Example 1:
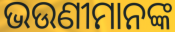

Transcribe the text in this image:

ଭଉଣୀମାନଙ୍କ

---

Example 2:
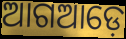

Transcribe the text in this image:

ଆଗଆଡ଼େ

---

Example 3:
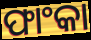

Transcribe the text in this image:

ଫାଂକା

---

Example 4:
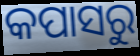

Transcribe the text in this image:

କପାସରୁ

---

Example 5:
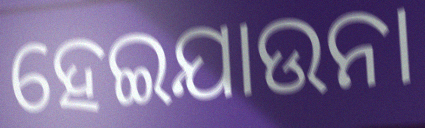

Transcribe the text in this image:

ହେଇଯାଉନା